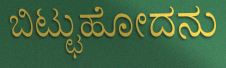
ಬಿಟ್ಟುಹೋದನು